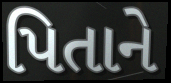
પિતાને